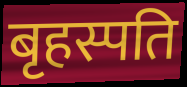
बृहस्‍पति